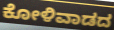
ಕೋಳಿವಾಡದ